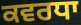
ਕਵਰਧਾ